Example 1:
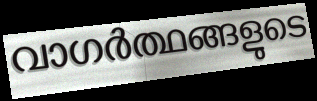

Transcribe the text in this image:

വാഗർത്ഥങ്ങളുടെ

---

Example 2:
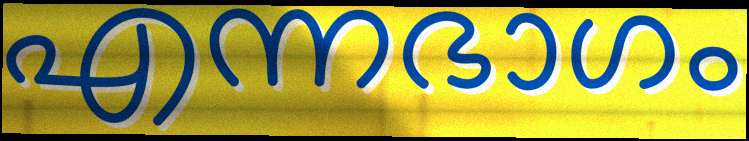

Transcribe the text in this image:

എന്നഭാഗം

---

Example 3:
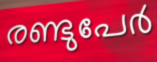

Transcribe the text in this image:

രണ്ടുപേർ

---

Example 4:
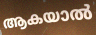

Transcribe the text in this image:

ആകയാൽ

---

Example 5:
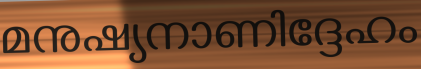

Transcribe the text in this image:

മനുഷ്യനാണിദ്ദേഹം